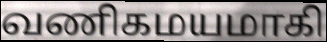
வணிகமயமாகி